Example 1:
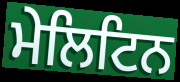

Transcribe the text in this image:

ਮੇਲਿਟਿਨ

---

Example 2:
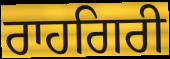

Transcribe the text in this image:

ਰਾਹਗਿਰੀ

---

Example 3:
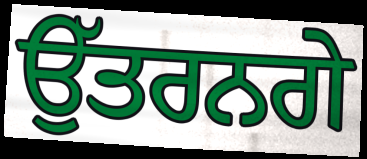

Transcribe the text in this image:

ਉੱਤਰਨਗੇ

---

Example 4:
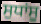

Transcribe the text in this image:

ਸੁਧਾਂਸੂ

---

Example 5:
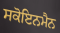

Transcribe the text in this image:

ਸਕੋਇਨਮੈਨ